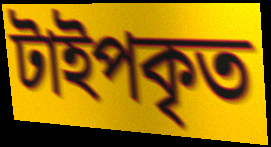
টাইপকৃত